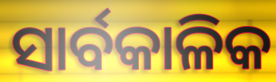
ସାର୍ବକାଳିକ